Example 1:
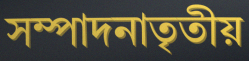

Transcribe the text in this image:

সম্পাদনাতৃতীয়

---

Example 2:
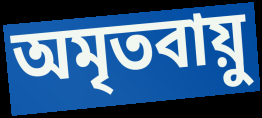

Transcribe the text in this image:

অমৃতবায়ু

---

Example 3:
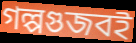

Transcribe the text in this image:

গল্পগুজবই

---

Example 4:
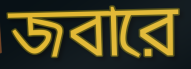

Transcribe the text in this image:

জবারে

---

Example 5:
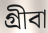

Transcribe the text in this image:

গ্রীবা